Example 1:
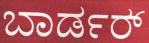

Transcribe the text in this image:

ಬಾರ್ಡರ್‍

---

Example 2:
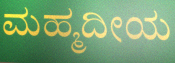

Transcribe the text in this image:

ಮಹ್ಮದೀಯ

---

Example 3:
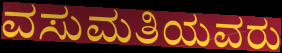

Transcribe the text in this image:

ವಸುಮತಿಯವರು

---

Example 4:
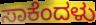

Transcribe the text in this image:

ಸಾಕೆಂದಳು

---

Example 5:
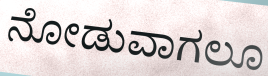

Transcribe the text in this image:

ನೋಡುವಾಗಲೂ